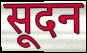
सूदन